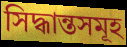
সিদ্ধান্তসমূহ